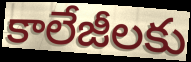
కాలేజీలకు